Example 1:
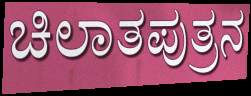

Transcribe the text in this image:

ಚಿಲಾತಪುತ್ರನ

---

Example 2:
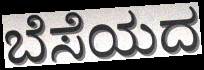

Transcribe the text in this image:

ಬೆಸೆಯದ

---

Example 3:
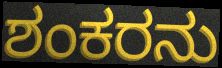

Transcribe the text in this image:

ಶಂಕರನು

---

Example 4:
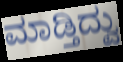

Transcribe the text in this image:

ಮಾಡ್ತಿದ್ವು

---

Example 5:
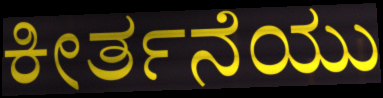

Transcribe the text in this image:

ಕೀರ್ತನೆಯು